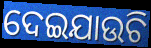
ଦେଇଯାଉଚି